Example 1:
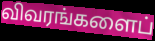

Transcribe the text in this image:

விவரங்களைப்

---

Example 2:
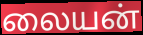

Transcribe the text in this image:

லையன்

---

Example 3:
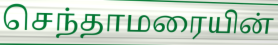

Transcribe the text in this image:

செந்தாமரையின்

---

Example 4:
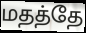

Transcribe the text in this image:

மதத்தே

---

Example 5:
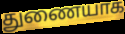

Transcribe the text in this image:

துணையாக